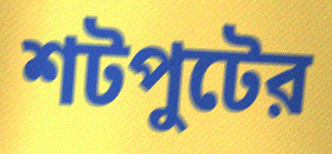
শটপুটের